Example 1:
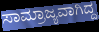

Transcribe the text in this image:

ಸಾಮ್ರಾಜ್ಯವಾಗಿದ್ದ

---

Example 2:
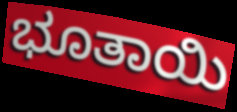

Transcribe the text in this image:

ಭೂತಾಯಿ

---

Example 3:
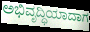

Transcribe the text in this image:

ಅಭಿವೃದ್ಧಿಯಾದಾಗ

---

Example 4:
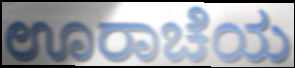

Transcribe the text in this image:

ಊರಾಚೆಯ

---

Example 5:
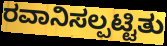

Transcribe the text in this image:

ರವಾನಿಸಲ್ಪಟ್ಟಿತು